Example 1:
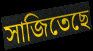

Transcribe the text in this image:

সাজিতেছে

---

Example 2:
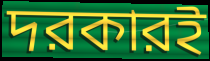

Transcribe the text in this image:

দরকারই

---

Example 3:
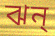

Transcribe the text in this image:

ঝন্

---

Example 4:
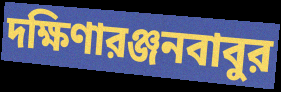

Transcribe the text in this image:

দক্ষিণারঞ্জনবাবুর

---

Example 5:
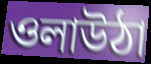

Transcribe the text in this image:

ওলাউঠা